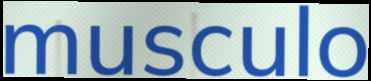
musculo